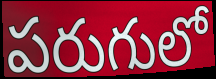
పరుగులో